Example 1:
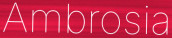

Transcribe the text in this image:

Ambrosia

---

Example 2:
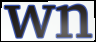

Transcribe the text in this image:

wn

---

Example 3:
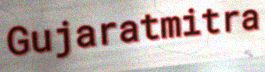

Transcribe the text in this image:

Gujaratmitra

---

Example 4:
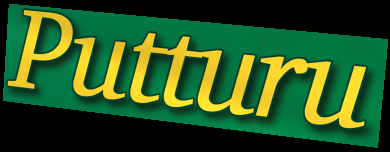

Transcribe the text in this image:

Putturu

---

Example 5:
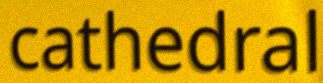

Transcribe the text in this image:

cathedral